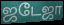
ஜடேஜா